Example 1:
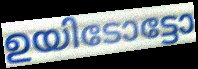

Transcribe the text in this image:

ഉയിടോട്ടോ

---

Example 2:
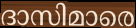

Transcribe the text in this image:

ദാസിമാരെ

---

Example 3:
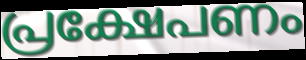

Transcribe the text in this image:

പ്രക്ഷേപണം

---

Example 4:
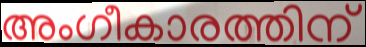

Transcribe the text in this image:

അംഗീകാരത്തിന്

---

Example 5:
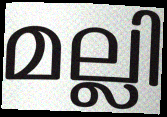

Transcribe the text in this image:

മല്ലി